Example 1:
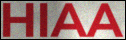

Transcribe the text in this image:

HIAA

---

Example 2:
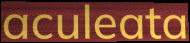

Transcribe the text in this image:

aculeata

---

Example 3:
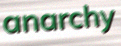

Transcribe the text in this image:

anarchy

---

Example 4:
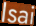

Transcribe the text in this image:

Isai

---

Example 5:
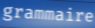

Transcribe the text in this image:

grammaire